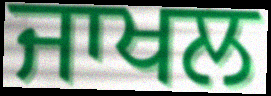
ਜਾਖਲ